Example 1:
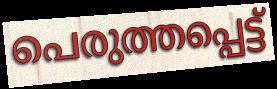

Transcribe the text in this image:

പെരുത്തപ്പെട്ട്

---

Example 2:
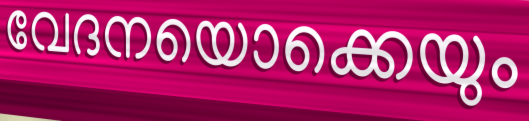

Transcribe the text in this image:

വേദനയൊക്കെയും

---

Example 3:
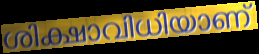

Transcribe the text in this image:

ശിക്ഷാവിധിയാണ്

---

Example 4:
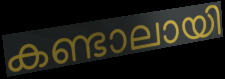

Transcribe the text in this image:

കണ്ടാലായി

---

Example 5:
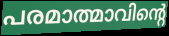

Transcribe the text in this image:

പരമാത്മാവിന്റെ